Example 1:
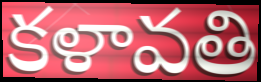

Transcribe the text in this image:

కళావతి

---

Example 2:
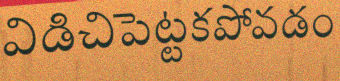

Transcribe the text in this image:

విడిచిపెట్టకపోవడం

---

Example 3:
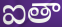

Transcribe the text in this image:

ఐతా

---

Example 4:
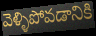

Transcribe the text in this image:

వెళ్ళిపోవడానికి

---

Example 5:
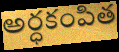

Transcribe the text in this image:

అర్ధకంపిత